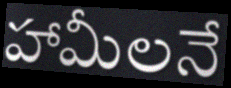
హామీలనే